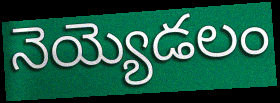
నెయ్యెడలం